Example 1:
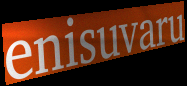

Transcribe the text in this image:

enisuvaru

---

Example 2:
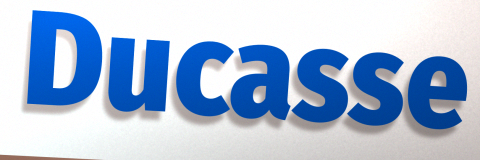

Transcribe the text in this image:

Ducasse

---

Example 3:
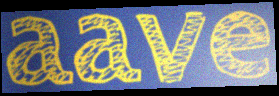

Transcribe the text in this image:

aave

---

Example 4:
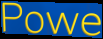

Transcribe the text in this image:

Powe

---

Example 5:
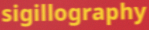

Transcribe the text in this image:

sigillography